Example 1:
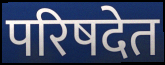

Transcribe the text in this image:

परिषदेत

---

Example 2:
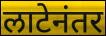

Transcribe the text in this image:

लाटेनंतर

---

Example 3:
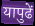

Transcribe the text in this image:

यापुढें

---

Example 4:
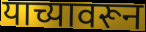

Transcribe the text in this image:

याच्यावरून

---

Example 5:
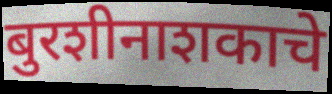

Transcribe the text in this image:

बुरशीनाशकाचे